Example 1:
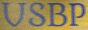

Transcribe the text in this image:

USBP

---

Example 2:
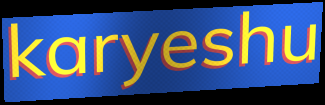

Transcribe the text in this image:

karyeshu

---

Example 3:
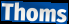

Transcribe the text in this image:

Thoms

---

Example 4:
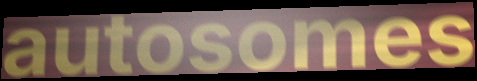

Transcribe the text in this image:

autosomes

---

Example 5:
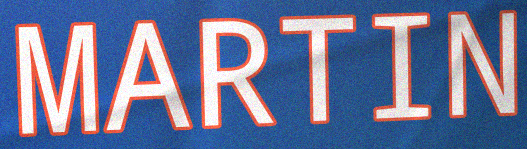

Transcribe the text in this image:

MARTIN